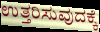
ಉತ್ತರಿಸುವುದಕ್ಕೆ